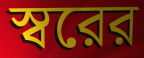
স্বরের